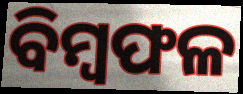
ବିମ୍ୱଫଳ